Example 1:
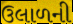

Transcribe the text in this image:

ઉલાળની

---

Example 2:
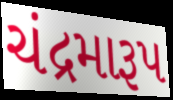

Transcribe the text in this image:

ચંદ્રમારૂપ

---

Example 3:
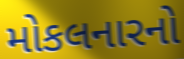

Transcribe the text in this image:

મોકલનારનો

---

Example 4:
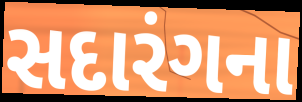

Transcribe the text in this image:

સદારંગના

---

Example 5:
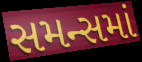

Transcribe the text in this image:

સમન્સમાં